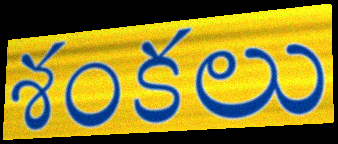
శంకలు